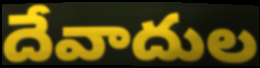
దేవాదుల